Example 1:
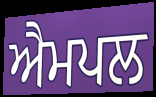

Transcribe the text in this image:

ਐਮਪਲ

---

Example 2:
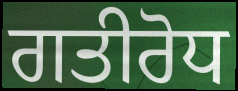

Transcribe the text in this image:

ਗਤੀਰੋਧ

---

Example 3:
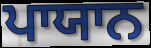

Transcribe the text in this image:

ਪਾਯਾਨ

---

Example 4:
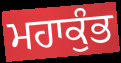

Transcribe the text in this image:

ਮਹਾਕੁੰਭ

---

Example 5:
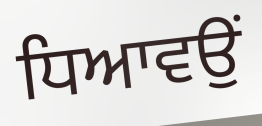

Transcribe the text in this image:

ਧਿਆਵਉਂ